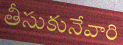
తీసుకునేవారి